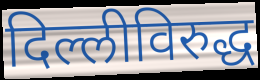
दिल्लीविरुद्ध